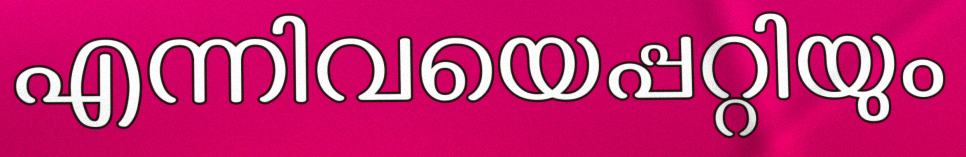
എന്നിവയെപ്പറ്റിയും